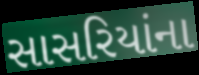
સાસરિયાંના